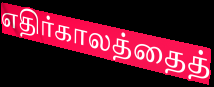
எதிர்காலத்தைத்